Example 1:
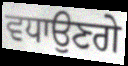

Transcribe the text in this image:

ਵਧਾਉਣਗੇ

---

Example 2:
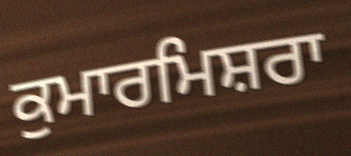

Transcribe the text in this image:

ਕੁਮਾਰਮਿਸ਼ਰਾ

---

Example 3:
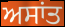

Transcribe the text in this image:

ਅਸਾਂਤ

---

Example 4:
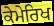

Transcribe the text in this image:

ਕੇਮੇਰਿਖ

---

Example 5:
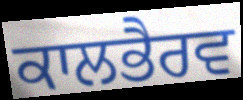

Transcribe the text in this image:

ਕਾਲਭੈਰਵ